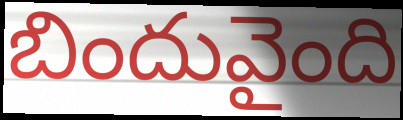
బిందువైంది